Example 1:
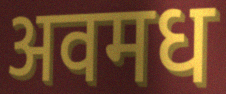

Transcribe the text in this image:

अवमध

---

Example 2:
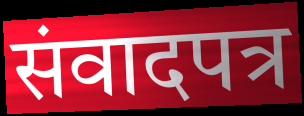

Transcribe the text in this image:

संवादपत्र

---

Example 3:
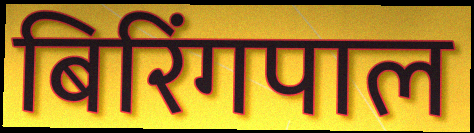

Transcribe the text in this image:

बिरिंगपाल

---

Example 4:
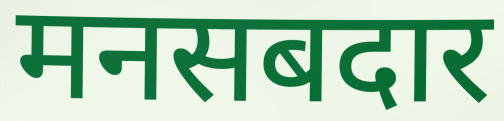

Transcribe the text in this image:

मनसबदार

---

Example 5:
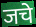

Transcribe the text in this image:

जचे